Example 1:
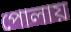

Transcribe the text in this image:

পোলায়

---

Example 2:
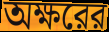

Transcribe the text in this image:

অক্ষরের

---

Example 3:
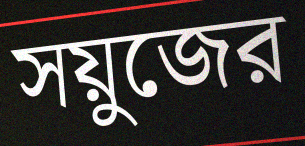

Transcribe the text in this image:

সয়ুজের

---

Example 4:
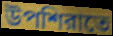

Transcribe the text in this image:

উপশিরাতে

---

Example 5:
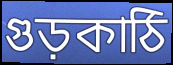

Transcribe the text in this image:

গুড়কাঠি